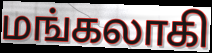
மங்கலாகி